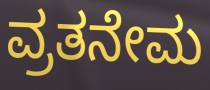
ವ್ರತನೇಮ